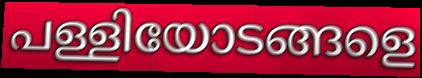
പള്ളിയോടങ്ങളെ